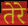
तेरे